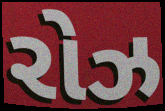
રોઝ